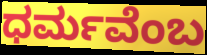
ಧರ್ಮವೆಂಬ